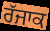
ਰੱਜਾਕ